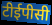
टीईपीसी